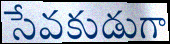
సేవకుడుగా